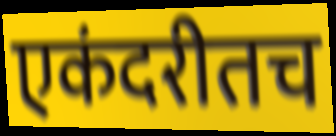
एकंदरीतच